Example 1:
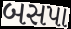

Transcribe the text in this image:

બસપા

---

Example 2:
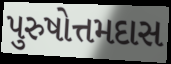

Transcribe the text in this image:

પુરુષોત્તમદાસ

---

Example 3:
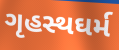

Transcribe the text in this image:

ગૃહસ્થઘર્મ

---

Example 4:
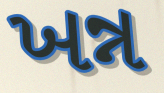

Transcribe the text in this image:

ખન્ન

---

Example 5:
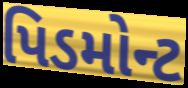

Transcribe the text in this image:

પિડમોન્ટ